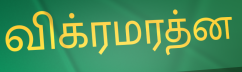
விக்ரமரத்ன